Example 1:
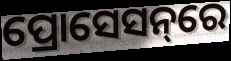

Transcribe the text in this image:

ପ୍ରୋସେସନ୍‌ରେ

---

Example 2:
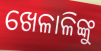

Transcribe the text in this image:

ଖେଳାଳିଙ୍କୁ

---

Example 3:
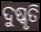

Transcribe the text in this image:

ଦୁଷ୍କୃତି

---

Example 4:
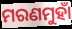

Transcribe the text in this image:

ମରଣମୁହାଁ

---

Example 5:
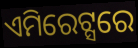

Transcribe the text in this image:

ଏମିରେଟ୍ସରେ